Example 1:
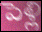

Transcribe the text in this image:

పెళ్లి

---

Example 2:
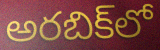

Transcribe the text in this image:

అరబిక్‌లో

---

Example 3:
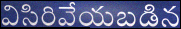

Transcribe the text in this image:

విసిరివేయబడిన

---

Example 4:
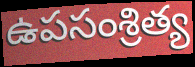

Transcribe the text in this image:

ఉపసంశ్రిత్య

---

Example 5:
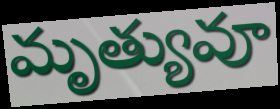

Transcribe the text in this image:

మృత్యువూ